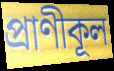
প্রাণীকূল